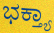
ಭಕ್ತ್ಯಾ